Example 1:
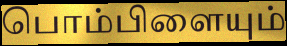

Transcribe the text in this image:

பொம்பிளையும்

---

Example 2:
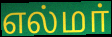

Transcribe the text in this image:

எல்மர்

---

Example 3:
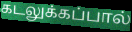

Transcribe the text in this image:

கடலுக்கப்பால்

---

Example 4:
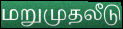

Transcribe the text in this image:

மறுமுதலீடு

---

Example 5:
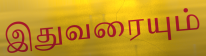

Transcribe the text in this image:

இதுவரையும்